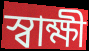
স্বাক্ষী